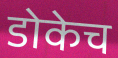
डोकेच